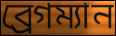
ব্রেগম্যান